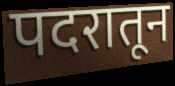
पदरातून